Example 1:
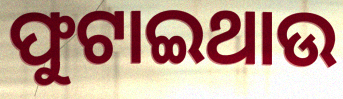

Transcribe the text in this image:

ଫୁଟାଇଥାଉ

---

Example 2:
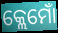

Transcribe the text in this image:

କ୍ଲେମୋଁ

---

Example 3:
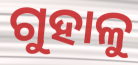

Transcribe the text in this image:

ଗୁହାଳୁ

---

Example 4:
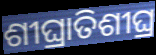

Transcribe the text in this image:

ଶୀଘ୍ରାତିଶୀଘ୍ର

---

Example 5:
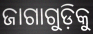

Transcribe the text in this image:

ଜାଗାଗୁଡ଼ିକୁ